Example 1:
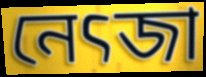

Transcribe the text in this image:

নেৎজা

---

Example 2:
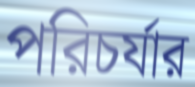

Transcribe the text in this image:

পরিচর্যার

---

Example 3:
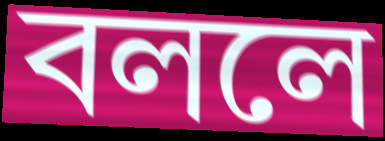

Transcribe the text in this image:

বললে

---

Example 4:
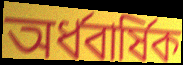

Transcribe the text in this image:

অর্ধবার্ষিক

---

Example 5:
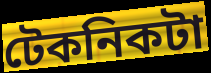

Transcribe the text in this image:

টেকনিকটা